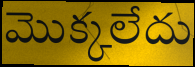
మొక్కలేదు